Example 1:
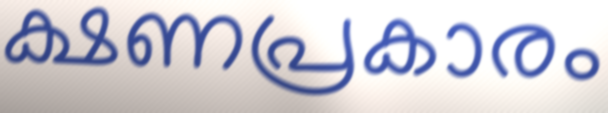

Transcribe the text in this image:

ക്ഷണപ്രകാരം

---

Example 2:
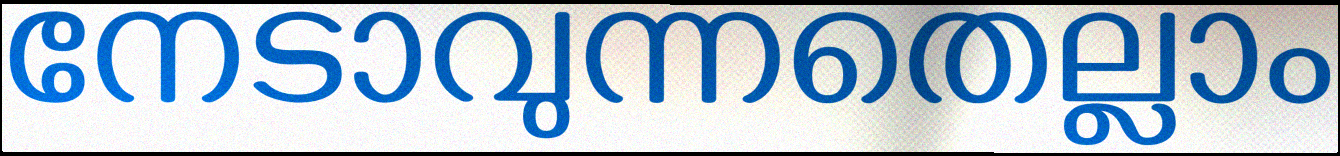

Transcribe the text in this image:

നേടാവുന്നതെല്ലാം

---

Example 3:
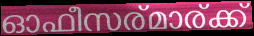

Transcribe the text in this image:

ഓഫീസര്മാര്ക്ക്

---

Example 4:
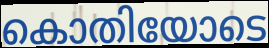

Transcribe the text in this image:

കൊതിയോടെ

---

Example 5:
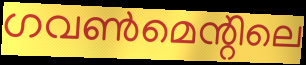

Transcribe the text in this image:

ഗവൺമെന്റിലെ